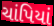
ચાંપિયાં